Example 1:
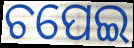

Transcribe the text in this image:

ଚପେଇ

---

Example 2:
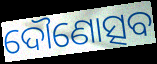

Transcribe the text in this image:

ଦୌଣୋତ୍ସବ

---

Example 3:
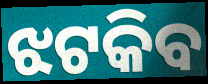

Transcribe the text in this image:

ଝଟକିବ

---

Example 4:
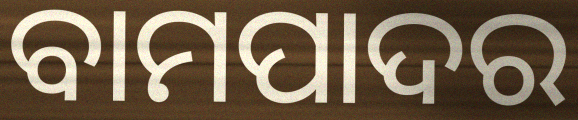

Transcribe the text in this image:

ବାମପାଦର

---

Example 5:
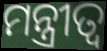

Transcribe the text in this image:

ମନ୍ତ୍ରୀତ୍ୱ